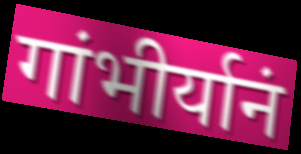
गांभीर्यानं